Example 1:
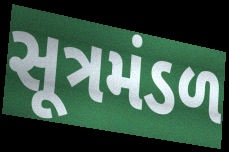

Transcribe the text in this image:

સૂત્રમંડળ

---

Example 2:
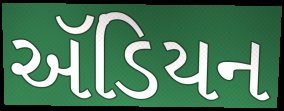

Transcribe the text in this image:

ઍંડિયન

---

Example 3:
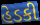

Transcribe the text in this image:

હેડકી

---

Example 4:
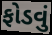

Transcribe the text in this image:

ફોડવું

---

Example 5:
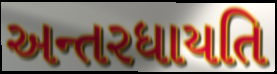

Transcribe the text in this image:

અન્તરધાયતિ